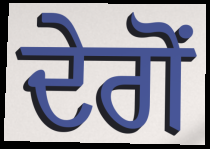
ਦੇਗੋਂ